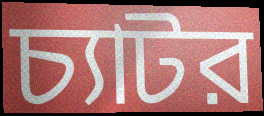
চ্যাটর